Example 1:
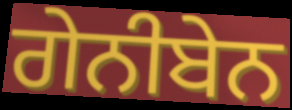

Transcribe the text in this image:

ਗੇਨੀਬੇਨ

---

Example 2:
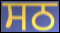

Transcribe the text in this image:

ਸਠ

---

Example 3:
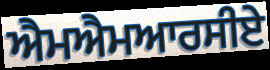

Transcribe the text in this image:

ਐਮਐਮਆਰਸੀਏ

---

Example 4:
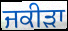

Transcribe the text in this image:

ਜਕੀੜਾ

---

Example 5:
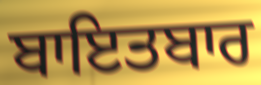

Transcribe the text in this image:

ਬਾਇਤਬਾਰ